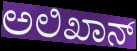
ಅಲಿಖಾನ್